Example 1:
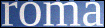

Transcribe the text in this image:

roma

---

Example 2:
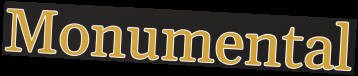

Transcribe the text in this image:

Monumental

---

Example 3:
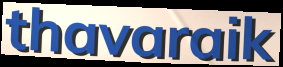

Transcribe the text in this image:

thavaraik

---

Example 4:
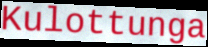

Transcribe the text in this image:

Kulottunga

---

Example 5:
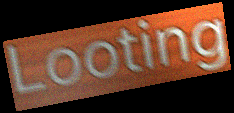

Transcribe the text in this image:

Looting